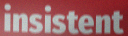
insistent